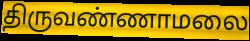
திருவண்ணாமலை